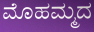
ಮೊಹಮ್ಮದ